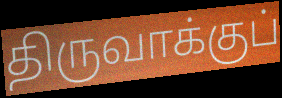
திருவாக்குப்